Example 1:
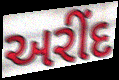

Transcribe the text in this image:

અરીંદ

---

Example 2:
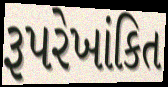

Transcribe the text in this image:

રૂપરેખાંકિત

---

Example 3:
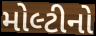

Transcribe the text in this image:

મોલ્ટીનો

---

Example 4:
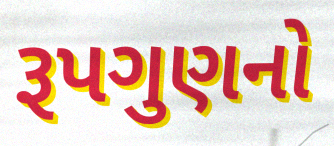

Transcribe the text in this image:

રૂપગુણનો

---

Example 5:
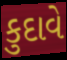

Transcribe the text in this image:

કુદાવે